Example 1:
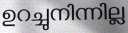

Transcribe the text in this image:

ഉറച്ചുനിന്നില്ല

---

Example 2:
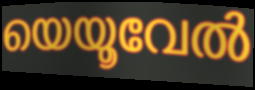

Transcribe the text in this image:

യെയൂവേൽ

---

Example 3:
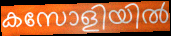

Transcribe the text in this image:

കസോളിയിൽ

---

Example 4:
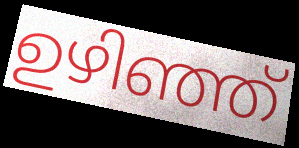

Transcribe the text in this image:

ഉഴിഞ്ഞ്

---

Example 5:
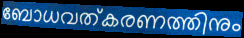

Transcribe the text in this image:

ബോധവത്കരണത്തിനും